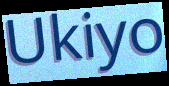
Ukiyo